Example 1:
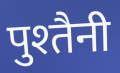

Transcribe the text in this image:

पुश्‍तैनी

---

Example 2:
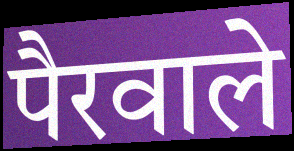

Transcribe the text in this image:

पैरवाले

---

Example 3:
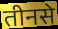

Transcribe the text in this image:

तीनसे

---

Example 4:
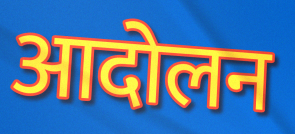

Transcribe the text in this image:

आदोलन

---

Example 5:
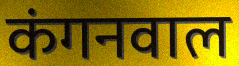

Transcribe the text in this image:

कंगनवाल